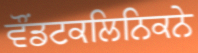
ਵੌਂਡਟਕਲਿਨਿਕਨੇ